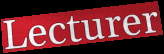
Lecturer